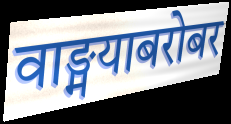
वाङ्मयाबरोबर